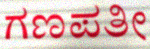
ಗಣಪತೀ